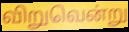
விறுவென்று